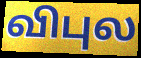
விபுல